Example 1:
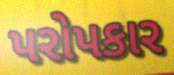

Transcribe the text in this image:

પરોપકાર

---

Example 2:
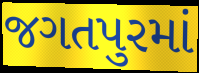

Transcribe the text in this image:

જગતપુરમાં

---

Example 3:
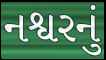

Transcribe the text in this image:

નશ્વરનું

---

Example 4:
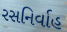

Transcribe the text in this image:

રસનિર્વાહ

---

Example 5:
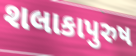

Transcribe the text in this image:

શલાકાપુરુષ